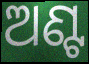
ଅଣ୍ଟ